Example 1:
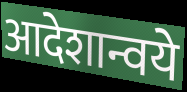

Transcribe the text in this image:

आदेशान्वये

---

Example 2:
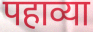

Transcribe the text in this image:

पहाव्या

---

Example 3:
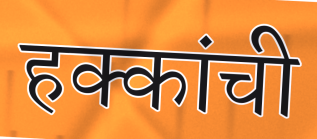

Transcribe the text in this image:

हक्कांची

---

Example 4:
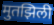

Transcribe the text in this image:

मुतझिली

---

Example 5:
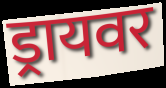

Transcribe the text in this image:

ड्रायवर